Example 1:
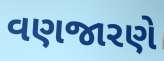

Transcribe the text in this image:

વણજારણે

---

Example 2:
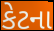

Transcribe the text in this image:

કેટના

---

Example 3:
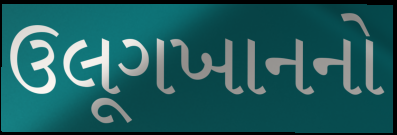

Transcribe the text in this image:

ઉલૂગખાનનો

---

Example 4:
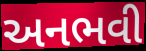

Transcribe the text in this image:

અનભવી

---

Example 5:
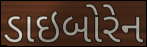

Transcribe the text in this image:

ડાઇબોરેન